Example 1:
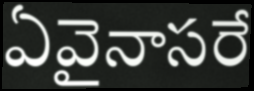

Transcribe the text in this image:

ఏవైనాసరే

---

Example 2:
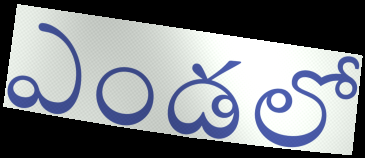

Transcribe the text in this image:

ఎండలో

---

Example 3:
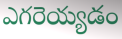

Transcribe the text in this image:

ఎగరెయ్యడం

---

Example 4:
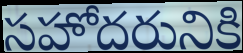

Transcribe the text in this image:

సహోదరునికి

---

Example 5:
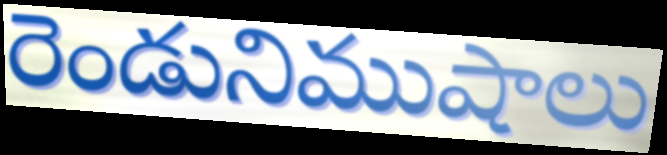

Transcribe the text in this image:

రెండునిముషాలు